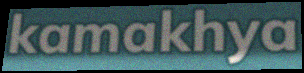
kamakhya